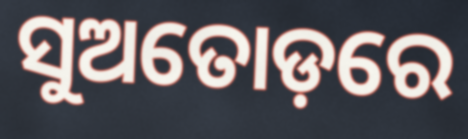
ସୁଅତୋଡ଼ରେ